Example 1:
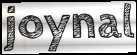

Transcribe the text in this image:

joynal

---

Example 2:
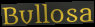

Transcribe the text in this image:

Bullosa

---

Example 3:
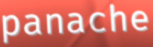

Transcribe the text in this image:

panache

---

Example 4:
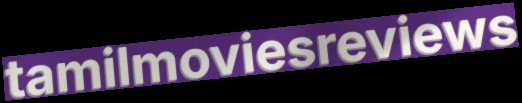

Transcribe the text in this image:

tamilmoviesreviews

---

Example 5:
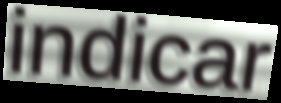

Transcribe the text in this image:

indicar